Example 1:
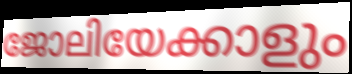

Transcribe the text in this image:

ജോലിയേക്കാളും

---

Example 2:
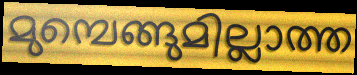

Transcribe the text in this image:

മുമ്പെങ്ങുമില്ലാത്ത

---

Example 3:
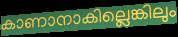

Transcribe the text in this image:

കാണാനാകില്ലെങ്കിലും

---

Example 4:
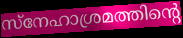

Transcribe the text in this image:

സ്നേഹാശ്രമത്തിന്റെ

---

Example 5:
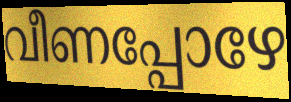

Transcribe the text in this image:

വീണപ്പോഴേ